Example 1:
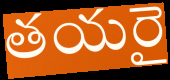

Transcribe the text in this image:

తయరై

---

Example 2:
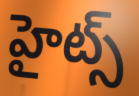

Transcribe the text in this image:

హైట్స్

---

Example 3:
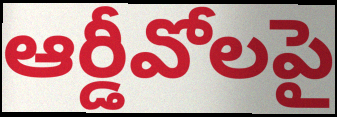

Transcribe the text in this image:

ఆర్డీవోలపై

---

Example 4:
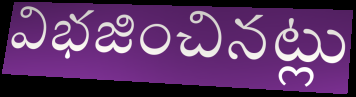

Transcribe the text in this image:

విభజించినట్లు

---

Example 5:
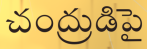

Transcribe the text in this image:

చంద్రుడిపై